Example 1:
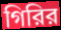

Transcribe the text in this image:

গিরির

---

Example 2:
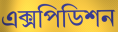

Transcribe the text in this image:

এক্সপিডিশন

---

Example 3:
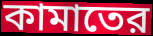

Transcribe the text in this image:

কামাতের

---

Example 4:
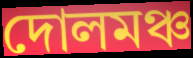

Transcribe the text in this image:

দোলমঞ্চ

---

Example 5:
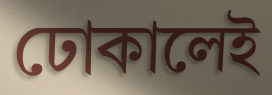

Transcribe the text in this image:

ঢোকালেই